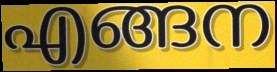
എങ്ങന